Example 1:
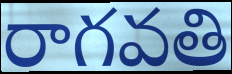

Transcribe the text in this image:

రాగవతి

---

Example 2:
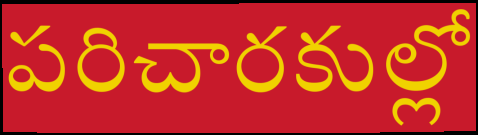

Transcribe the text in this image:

పరిచారకుల్లో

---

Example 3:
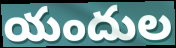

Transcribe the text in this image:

యందుల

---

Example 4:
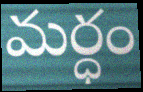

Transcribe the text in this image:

మర్ధం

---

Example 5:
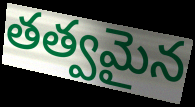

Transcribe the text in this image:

తత్వమైన